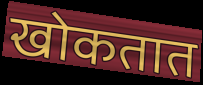
खोकतात